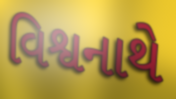
વિશ્વનાથે